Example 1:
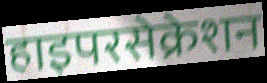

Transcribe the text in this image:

हाइपरसेक्रेशन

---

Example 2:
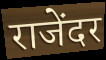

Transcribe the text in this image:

राजेंदर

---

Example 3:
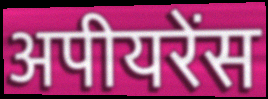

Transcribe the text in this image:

अपीयरेंस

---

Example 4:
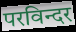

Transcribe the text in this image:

परविन्दर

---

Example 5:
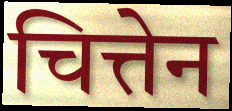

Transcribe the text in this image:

चित्तेन